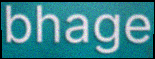
bhage